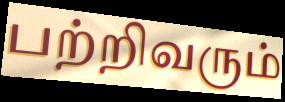
பற்றிவரும்